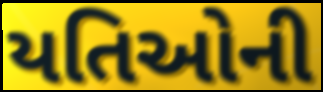
યતિઓની